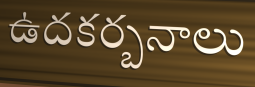
ఉదకర్బనాలు